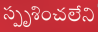
స్పృశించలేని